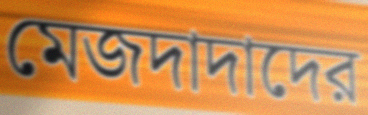
মেজদাদাদের